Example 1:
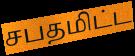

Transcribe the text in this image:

சபதமிட்ட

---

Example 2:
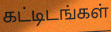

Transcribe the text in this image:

கட்டிடங்கள்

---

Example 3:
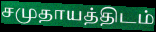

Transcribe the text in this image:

சமுதாயத்திடம்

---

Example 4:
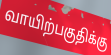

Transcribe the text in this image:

வாயிற்பகுதிக்கு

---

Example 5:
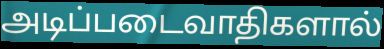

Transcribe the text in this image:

அடிப்படைவாதிகளால்